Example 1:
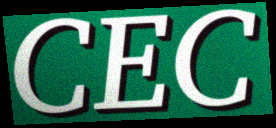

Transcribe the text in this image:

CEC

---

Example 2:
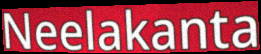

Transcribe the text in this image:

Neelakanta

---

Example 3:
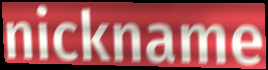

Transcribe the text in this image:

nickname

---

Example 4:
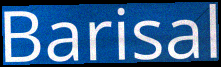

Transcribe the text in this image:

Barisal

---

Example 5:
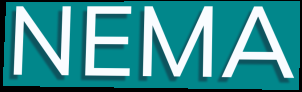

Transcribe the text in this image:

NEMA